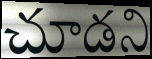
చూడని